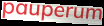
pauperum